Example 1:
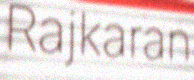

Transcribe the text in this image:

Rajkaran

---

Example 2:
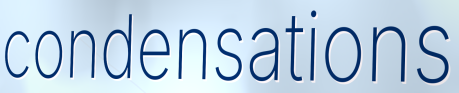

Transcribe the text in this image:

condensations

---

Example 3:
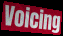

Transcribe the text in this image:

Voicing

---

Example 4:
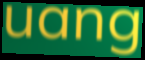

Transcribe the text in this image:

uang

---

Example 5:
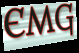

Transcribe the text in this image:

EMG